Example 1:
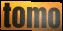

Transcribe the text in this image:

tomo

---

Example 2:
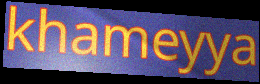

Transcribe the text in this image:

khameyya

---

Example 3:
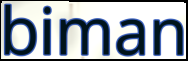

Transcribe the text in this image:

biman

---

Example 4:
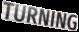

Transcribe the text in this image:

TURNING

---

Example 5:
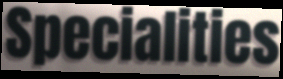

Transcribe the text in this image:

Specialities